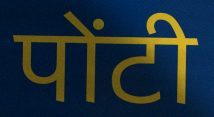
पोंटी